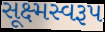
સૂક્ષ્મસ્વરૂપ